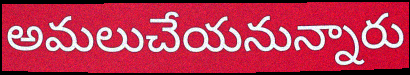
అమలుచేయనున్నారు